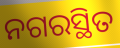
ନଗରସ୍ଥିତ